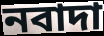
নবাদা